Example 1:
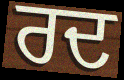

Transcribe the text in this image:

ਰਦ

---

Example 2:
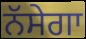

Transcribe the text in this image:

ਨੱਸੇਗਾ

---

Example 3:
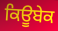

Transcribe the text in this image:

ਕਿਊਬੇਕ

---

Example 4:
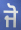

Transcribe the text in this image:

ਜੋ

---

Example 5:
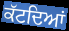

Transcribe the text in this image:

ਕੱਟਦਿਆਂ